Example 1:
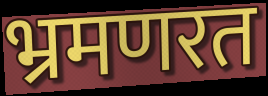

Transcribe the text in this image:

भ्रमणरत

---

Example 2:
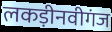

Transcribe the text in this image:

लकड़ीनवीगंज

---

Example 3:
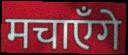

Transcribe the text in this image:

मचाएँगे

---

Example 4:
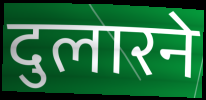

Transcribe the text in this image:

दुलारने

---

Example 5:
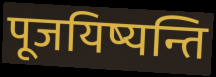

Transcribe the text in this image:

पूजयिष्यन्ति